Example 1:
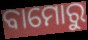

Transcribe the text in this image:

ବାମୋରୁ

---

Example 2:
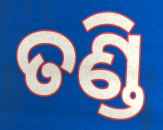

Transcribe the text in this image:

ତଣ୍ଡି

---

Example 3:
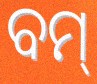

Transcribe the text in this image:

ବମ୍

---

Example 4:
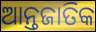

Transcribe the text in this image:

ଆନ୍ତଜାତିକ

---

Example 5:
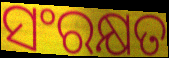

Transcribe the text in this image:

ସଂରକ୍ଷତ